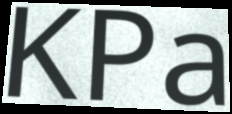
KPa